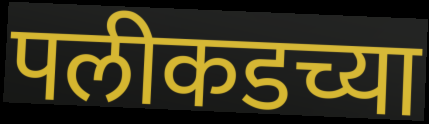
पलीकडच्या